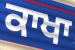
ਕਾਖਾ